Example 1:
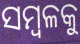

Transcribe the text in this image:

ସମ୍ବଳକୁ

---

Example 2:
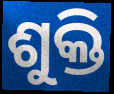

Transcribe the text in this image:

ଶୁକ୍ତି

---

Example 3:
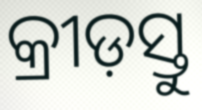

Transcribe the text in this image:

କ୍ରୀଡ଼ସ୍ତୁ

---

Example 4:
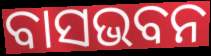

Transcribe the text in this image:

ବାସଭବନ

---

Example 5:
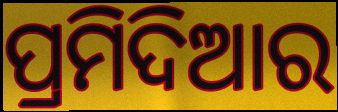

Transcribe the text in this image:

ପ୍ରମିଦିଆର